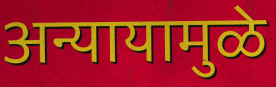
अन्यायामुळे